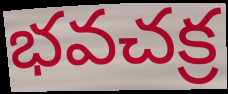
భవచక్ర